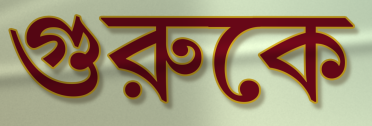
গুরুকে